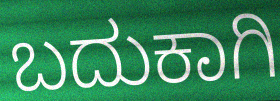
ಬದುಕಾಗಿ